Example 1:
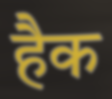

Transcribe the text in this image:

हैक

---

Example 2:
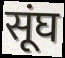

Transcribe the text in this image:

सूंघ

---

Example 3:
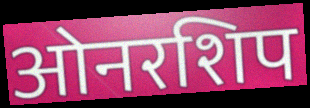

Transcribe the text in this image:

ओनरशिप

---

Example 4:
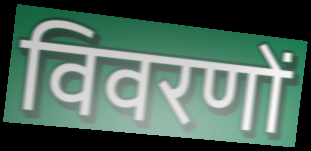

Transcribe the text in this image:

विवरणों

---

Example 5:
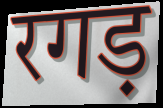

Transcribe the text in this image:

रगड़